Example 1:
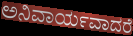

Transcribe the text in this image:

ಅನಿವಾರ್ಯವಾದರೆ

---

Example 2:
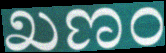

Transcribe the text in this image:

ಖಣಂ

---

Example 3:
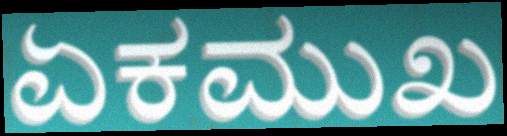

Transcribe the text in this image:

ಏಕಮುಖ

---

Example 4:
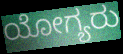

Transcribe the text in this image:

ಯೋಗ್ಯರು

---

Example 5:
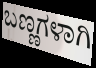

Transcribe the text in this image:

ಬಣ್ಣಗಳಾಗಿ